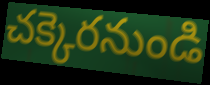
చక్కెరనుండి